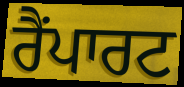
ਰੈਂਪਾਰਟ